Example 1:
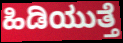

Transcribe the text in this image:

ಹಿಡಿಯುತ್ತೆ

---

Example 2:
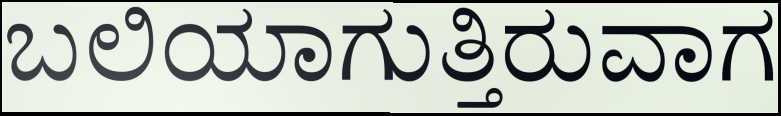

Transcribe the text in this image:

ಬಲಿಯಾಗುತ್ತಿರುವಾಗ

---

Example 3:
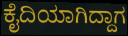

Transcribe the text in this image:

ಕೈದಿಯಾಗಿದ್ದಾಗ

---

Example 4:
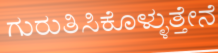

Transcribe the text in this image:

ಗುರುತಿಸಿಕೊಳ್ಳುತ್ತೇನೆ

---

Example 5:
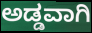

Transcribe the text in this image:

ಅಡ್ಡವಾಗಿ